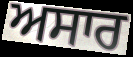
ਅਸਾਰ